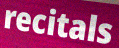
recitals